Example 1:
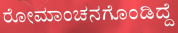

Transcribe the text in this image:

ರೋಮಾಂಚನಗೊಂಡಿದ್ದೆ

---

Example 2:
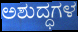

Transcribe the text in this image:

ಅಶುದ್ಧಗಳ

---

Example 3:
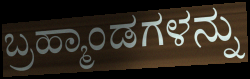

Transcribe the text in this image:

ಬ್ರಹ್ಮಾಂಡಗಳನ್ನು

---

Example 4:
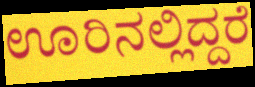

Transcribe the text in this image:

ಊರಿನಲ್ಲಿದ್ದರೆ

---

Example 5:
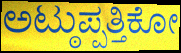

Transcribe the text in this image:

ಅಟ್ಠುಪ್ಪತ್ತಿಕೋ